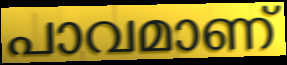
പാവമാണ്